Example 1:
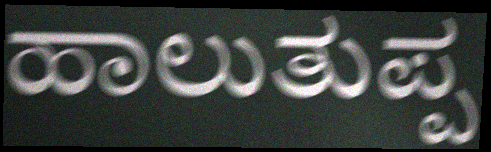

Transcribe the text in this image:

ಹಾಲುತುಪ್ಪ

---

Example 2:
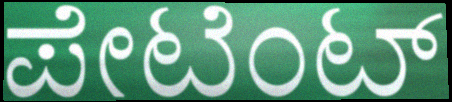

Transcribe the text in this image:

ಪೇಟೆಂಟ್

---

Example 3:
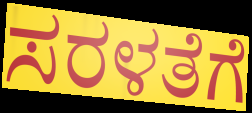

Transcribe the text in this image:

ಸರಳತೆಗೆ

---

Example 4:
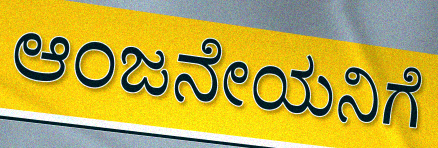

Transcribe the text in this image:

ಆಂಜನೇಯನಿಗೆ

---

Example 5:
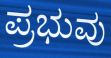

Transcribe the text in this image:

ಪ್ರಭುವು